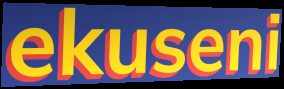
ekuseni